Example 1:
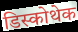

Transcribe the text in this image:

डिस्कोथेक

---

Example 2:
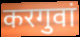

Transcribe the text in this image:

करगुवां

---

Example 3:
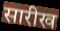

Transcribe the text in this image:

सारीख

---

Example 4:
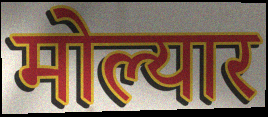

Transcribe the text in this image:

मोल्यार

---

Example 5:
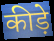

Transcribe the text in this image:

कीड़े